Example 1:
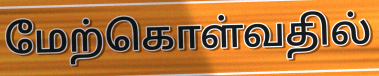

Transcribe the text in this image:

மேற்கொள்வதில்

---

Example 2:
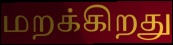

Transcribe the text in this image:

மறக்கிறது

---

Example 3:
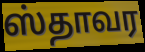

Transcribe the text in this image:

ஸ்தாவர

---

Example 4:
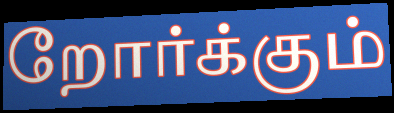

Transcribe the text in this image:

றோர்க்கும்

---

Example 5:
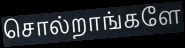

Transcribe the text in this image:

சொல்றாங்களே